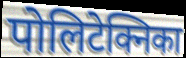
पोलिटेक्निका